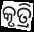
କୃତ୍ରି